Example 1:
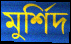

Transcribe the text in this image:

মুর্শিদ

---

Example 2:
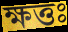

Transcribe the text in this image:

ক্ষত্তঃ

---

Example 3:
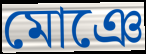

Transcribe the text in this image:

মোঞে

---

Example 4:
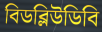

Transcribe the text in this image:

বিডব্লিউডিবি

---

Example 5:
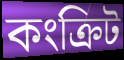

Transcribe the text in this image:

কংক্রিট